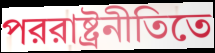
পররাষ্ট্রনীতিতে